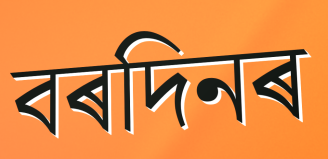
বৰদিনৰ